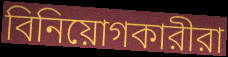
বিনিয়োগকারীরা